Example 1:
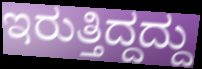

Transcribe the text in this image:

ಇರುತ್ತಿದ್ದದ್ದು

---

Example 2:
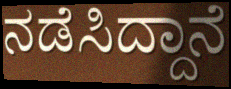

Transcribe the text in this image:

ನಡೆಸಿದ್ದಾನೆ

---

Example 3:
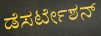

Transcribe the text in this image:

ಡೆಸರ್ಟೇಶನ್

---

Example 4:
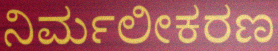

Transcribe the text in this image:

ನಿರ್ಮಲೀಕರಣ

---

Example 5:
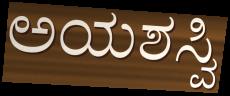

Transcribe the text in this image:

ಅಯಶಸ್ವಿ